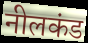
नीलकंड